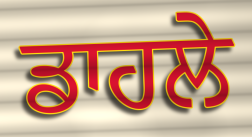
ਡਾਹਲੇ